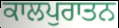
ਕਾਲਪੁਰਾਤਨ